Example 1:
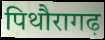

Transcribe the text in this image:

पिथौरागढ़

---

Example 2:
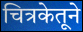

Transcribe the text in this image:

चित्रकेतूने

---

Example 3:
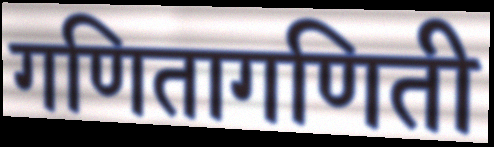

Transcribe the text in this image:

गणितागणिती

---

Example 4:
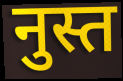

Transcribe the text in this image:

नुस्त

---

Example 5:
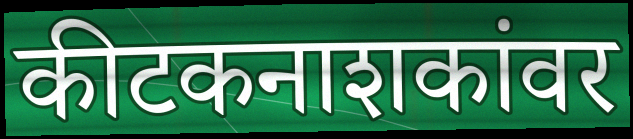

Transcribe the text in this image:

कीटकनाशकांवर